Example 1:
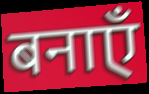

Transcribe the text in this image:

बनाएँ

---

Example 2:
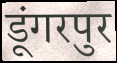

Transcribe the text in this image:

डूंगरपुर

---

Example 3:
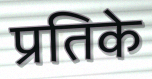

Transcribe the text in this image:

प्रतिके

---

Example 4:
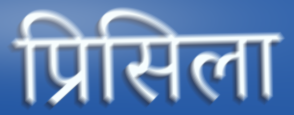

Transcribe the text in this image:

प्रिसिला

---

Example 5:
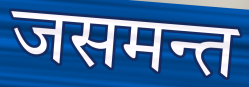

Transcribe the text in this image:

जसमन्त